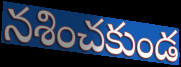
నశించకుండ